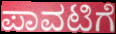
ಪಾವಟಿಗೆ